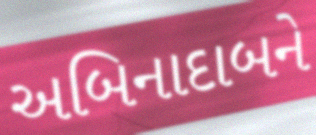
અબિનાદાબને